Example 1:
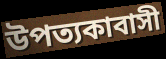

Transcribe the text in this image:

উপত্যকাবাসী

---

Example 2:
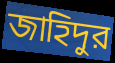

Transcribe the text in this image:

জাহিদুর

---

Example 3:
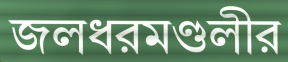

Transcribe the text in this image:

জলধরমণ্ডলীর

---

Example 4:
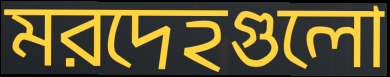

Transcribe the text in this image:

মরদেহগুলো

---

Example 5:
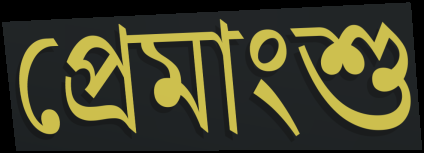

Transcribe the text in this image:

প্রেমাংশু